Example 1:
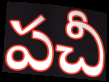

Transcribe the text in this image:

పచీ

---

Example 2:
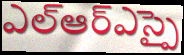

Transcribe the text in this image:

ఎల్ఆర్ఎస్పై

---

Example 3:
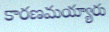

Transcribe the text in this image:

కారణమయ్యారు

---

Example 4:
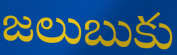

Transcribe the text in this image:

జలుబుకు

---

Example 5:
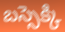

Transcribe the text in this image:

బస్సెక్కి